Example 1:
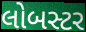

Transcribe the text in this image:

લોબસ્ટર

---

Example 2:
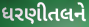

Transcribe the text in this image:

ધરણીતલને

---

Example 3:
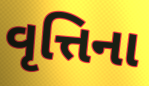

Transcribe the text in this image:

વૃત્તિના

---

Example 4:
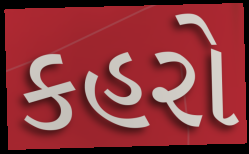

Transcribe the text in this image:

કહરો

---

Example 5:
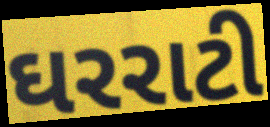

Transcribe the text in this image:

ઘરરાટી